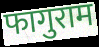
फागुराम